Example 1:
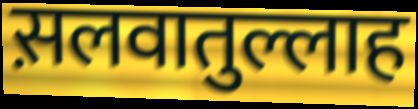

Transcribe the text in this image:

स़लवातुल्लाह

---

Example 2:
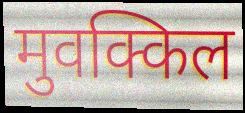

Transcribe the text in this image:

मुवक्किल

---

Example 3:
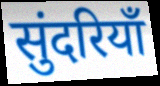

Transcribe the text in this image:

सुंदरियाँ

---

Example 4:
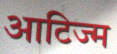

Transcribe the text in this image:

आटिज्म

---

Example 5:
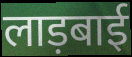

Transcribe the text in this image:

लाड़बाई